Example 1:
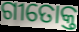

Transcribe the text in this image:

ଗୀତୋକ୍ତ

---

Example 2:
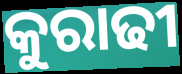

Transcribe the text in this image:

କୁରାଢୀ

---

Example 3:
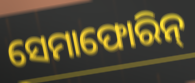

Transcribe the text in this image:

ସେମାଫୋରିନ୍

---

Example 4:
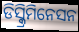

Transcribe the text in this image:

ଡିସ୍କ୍ରିମିନେସନ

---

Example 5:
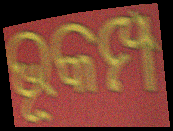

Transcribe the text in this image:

ଭୂକମ୍ପ